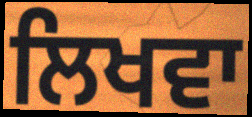
ਲਿਖਵਾ